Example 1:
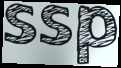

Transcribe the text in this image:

ssp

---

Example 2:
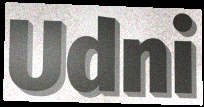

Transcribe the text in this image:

Udni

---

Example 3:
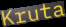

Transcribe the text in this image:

Kruta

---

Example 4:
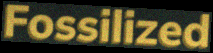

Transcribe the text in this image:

Fossilized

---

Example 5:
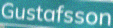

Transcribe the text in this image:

Gustafsson